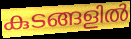
കുടങ്ങളിൽ